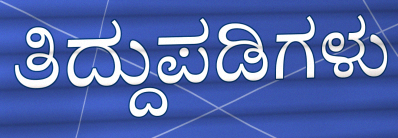
ತಿದ್ದುಪಡಿಗಳು